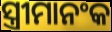
ସ୍ତ୍ରୀମାନଂକ